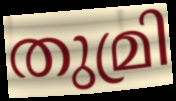
തുമ്രി